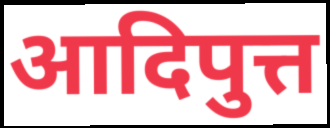
आदिपुत्त